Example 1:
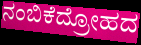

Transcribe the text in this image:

ನಂಬಿಕೆದ್ರೋಹದ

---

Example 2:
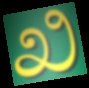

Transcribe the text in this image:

ಖಿ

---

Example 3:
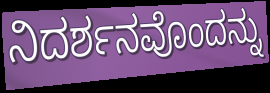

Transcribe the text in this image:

ನಿದರ್ಶನವೊಂದನ್ನು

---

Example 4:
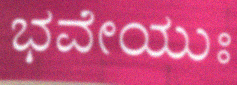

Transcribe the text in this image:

ಭವೇಯುಃ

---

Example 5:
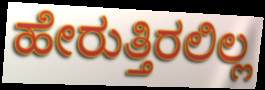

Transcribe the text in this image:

ಹೇರುತ್ತಿರಲಿಲ್ಲ